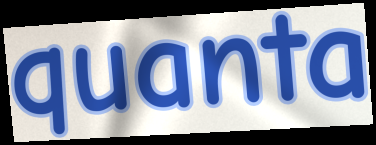
quanta